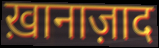
ख़ानाज़ाद